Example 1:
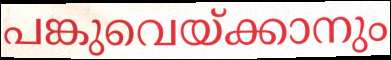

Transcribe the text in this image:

പങ്കുവെയ്ക്കാനും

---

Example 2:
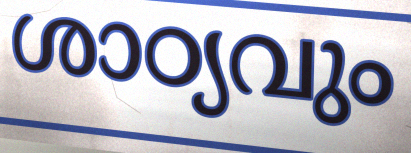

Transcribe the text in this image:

ശാഠ്യവും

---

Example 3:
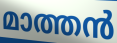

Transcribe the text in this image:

മാത്തൻ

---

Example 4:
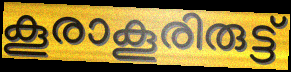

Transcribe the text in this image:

കൂരാകൂരിരുട്ട്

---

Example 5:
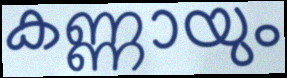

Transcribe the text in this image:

കണ്ണായും